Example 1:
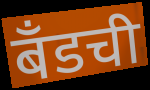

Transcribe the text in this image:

बँडची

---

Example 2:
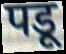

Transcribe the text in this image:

पडू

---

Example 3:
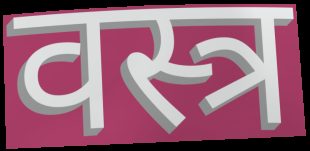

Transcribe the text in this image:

वस्त्र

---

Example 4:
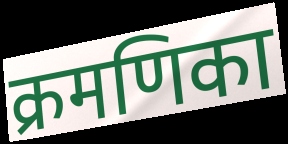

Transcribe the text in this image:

क्रमणिका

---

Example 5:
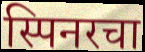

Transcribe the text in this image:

स्पिनरचा